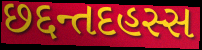
છદ્દન્તદહસ્સ